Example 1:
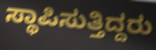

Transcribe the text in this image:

ಸ್ಥಾಪಿಸುತ್ತಿದ್ದರು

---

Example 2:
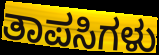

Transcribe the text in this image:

ತಾಪಸಿಗಳು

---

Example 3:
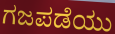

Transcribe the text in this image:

ಗಜಪಡೆಯು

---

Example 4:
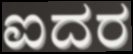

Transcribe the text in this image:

ಐದರ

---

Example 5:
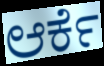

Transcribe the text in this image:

ಆರ್ಕೆ